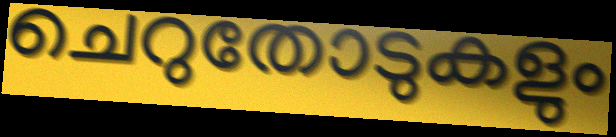
ചെറുതോടുകളും